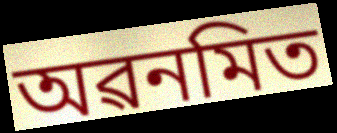
অৱনমিত